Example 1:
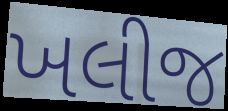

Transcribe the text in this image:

ખલીજ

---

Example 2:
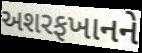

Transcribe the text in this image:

અશરફખાનને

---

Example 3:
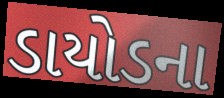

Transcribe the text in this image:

ડાયોડના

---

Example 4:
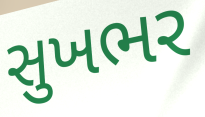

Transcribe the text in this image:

સુખભર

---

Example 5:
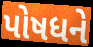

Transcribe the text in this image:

પોષધને